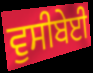
ਵੁਸੀਬੇਈ